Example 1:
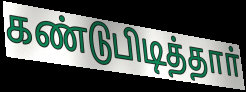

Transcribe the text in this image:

கண்டுபிடித்தார்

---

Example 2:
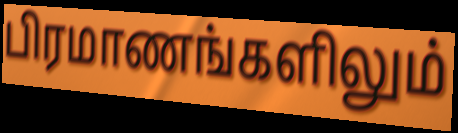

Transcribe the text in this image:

பிரமாணங்களிலும்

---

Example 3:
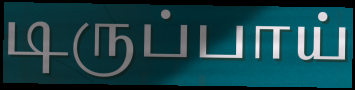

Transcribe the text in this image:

டிருப்பாய்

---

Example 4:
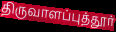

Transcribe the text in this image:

திருவாளப்புத்தூர்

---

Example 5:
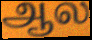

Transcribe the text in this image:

ஆல